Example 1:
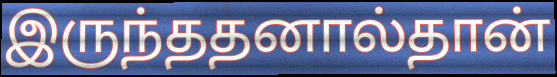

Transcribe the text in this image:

இருந்ததனால்தான்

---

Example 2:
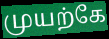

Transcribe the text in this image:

முயற்கே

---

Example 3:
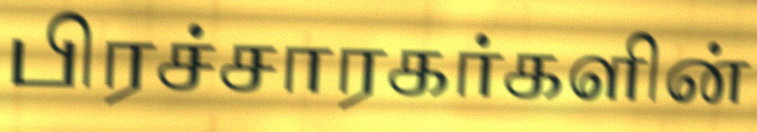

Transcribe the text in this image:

பிரச்சாரகர்களின்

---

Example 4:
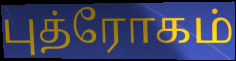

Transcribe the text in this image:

புத்ரோகம்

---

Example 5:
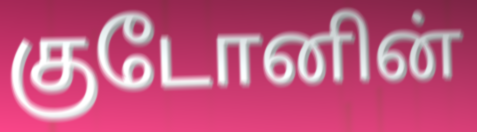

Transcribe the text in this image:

குடோனின்